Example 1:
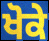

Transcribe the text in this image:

ਖੋਕੇ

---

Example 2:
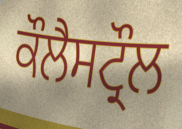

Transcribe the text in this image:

ਕੌਲੈਸਟ੍ਰੌਲ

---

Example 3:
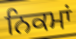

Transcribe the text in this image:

ਨਿਕਮਾਂ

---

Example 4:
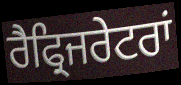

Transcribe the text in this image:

ਰੈਫ੍ਰਿਜਰੇਟਰਾਂ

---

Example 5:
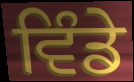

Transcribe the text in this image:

ਵਿੰਡੇ